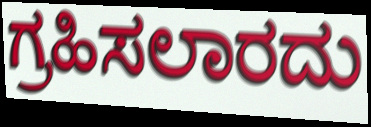
ಗ್ರಹಿಸಲಾರದು